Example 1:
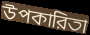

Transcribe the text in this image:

উপকারিতা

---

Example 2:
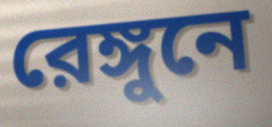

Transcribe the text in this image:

রেঙ্গুনে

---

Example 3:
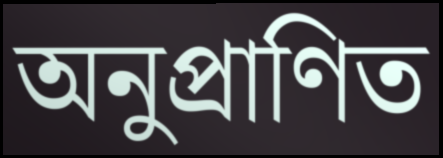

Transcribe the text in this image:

অনুপ্রাণিত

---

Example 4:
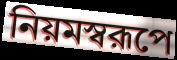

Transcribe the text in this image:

নিয়মস্বরূপে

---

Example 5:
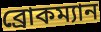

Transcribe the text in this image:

ব্রোকম্যান